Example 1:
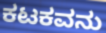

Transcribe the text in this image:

ಕಟಕವನು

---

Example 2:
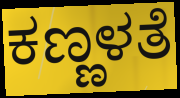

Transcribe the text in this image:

ಕಣ್ಣಳತೆ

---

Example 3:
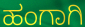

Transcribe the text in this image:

ಹಂಗಾಗಿ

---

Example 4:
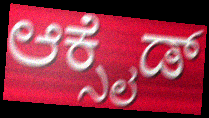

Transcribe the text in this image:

ಆಕ್ಸೈಡ್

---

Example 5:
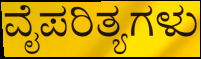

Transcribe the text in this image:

ವೈಪರಿತ್ಯಗಳು